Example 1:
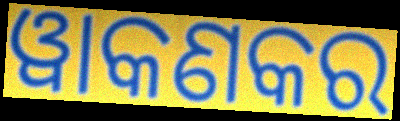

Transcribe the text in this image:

ୱାକଣକର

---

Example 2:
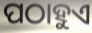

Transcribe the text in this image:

ପଠାହୁଏ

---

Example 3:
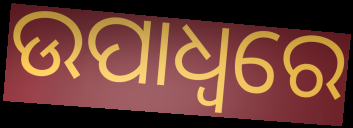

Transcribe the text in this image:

ଉପାଧ୍ଵରେ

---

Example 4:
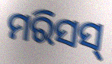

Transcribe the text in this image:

ମରିସସ୍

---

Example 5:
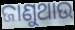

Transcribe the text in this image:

ଜାଣୁଥାଉ